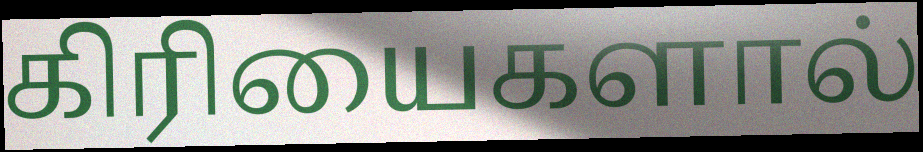
கிரியைகளால்